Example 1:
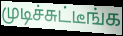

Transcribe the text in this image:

முடிச்சுட்டீங்க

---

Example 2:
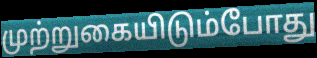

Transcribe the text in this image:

முற்றுகையிடும்போது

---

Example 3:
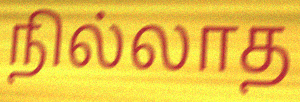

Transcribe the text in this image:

நில்லாத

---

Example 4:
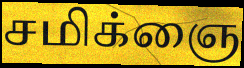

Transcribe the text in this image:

சமிக்ஞை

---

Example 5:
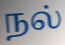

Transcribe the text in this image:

நல்